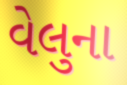
વેલુના